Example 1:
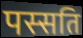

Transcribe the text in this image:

पस्सति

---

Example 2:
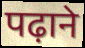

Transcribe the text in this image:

पढ़ाने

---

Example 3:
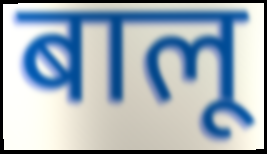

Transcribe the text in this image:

बालू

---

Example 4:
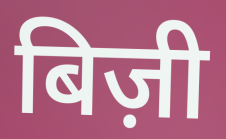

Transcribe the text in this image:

बिज़ी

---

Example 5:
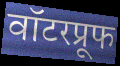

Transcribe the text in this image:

वॉटरप्रूफ